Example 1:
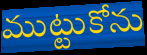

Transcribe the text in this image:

ముట్టుకోను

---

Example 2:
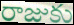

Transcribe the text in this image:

రాజుకు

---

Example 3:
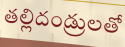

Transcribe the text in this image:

తల్లిదండ్రులతో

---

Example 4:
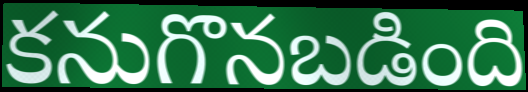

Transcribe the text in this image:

కనుగొనబడింది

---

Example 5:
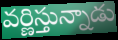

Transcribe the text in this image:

వర్ణిస్తున్నాడు